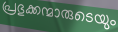
പ്രഭുക്കന്മാരുടെയും